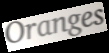
Oranges